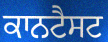
ਕਾਨਟੈਸਟ